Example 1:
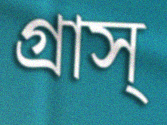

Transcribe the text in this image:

গ্রাস্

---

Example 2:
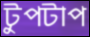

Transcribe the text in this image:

টুপটাপ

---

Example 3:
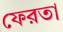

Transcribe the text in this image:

ফেরতা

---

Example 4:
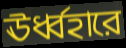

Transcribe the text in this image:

ঊর্ধ্বহারে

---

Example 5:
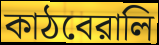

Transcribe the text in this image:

কাঠবেরালি